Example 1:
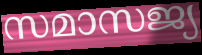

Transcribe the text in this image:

സമാസജ്യ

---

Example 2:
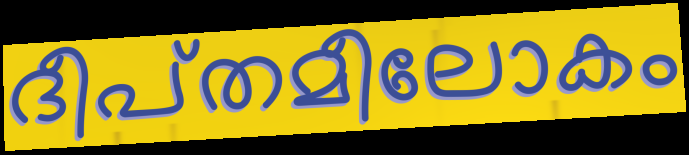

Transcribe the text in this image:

ദീപ്‌തമീലോകം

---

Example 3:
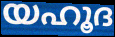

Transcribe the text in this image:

യഹൂദ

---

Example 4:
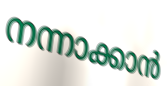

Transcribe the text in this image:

നന്നാക്കാൻ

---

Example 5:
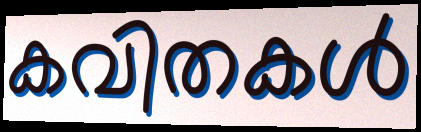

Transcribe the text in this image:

കവിതകൾ